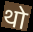
थो